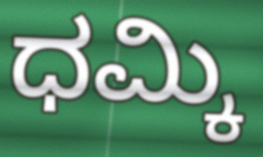
ಧಮ್ಕಿ